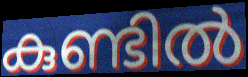
കുണ്ടിൽ